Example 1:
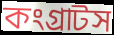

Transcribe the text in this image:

কংগ্রাটস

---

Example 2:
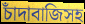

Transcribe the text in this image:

চাঁদাবাজিসহ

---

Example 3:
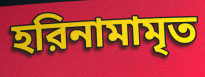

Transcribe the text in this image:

হরিনামামৃত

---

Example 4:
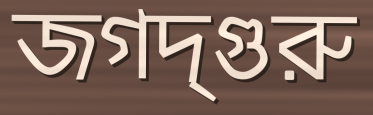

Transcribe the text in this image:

জগদ্‌গুরু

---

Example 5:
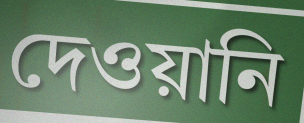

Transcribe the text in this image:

দেওয়ানি